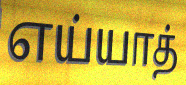
எய்யாத்